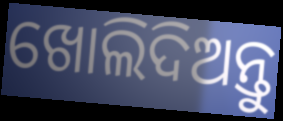
ଖୋଲିଦିଅନ୍ତୁ